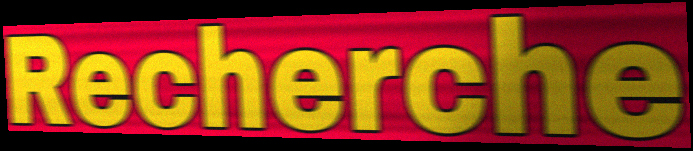
Recherche